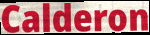
Calderon